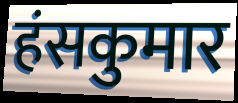
हंसकुमार